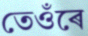
তেওঁৰে